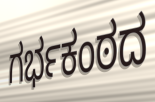
ಗರ್ಭಕಂಠದ